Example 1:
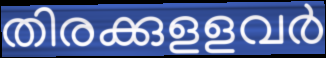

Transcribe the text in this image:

തിരക്കുളളവർ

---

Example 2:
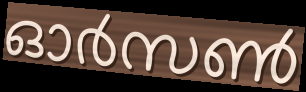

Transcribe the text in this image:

ഓർസൺ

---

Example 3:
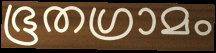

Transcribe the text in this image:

ഭൂതഗ്രാമം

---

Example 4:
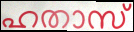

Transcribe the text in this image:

ഹതാസ്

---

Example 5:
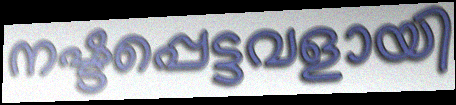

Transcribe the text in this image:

നഷ്ടപ്പെട്ടവളായി